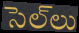
సెల్‌లు